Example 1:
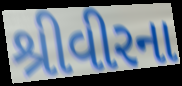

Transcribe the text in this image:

શ્રીવીરના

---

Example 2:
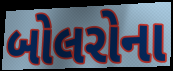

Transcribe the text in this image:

બોલરોના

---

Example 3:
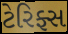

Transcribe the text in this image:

ટેરિફ્સ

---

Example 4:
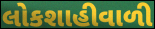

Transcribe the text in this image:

લોકશાહીવાળી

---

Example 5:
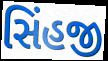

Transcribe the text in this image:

સિંહજી